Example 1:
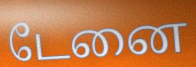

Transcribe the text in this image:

டேனை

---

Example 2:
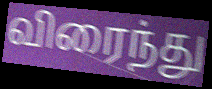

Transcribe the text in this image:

விரைந்து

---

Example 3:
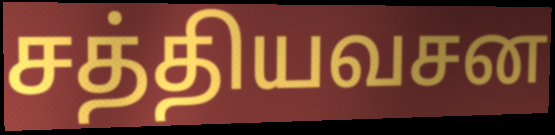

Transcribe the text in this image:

சத்தியவசன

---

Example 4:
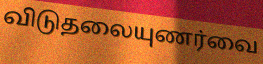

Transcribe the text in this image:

விடுதலையுணர்வை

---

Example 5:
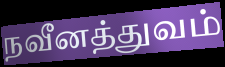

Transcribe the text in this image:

நவீனத்துவம்